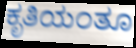
ಕೃತಿಯಂತೂ